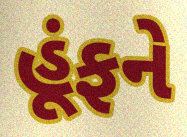
હૂંફને